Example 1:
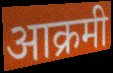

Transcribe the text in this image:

आक्रमी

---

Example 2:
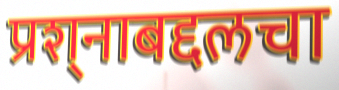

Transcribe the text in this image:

प्रश्नाबद्दलचा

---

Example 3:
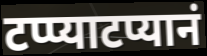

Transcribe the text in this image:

टप्प्याटप्यानं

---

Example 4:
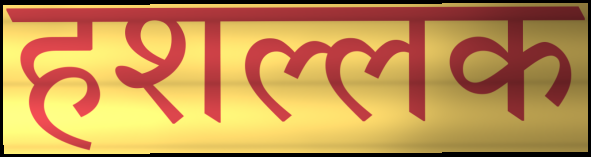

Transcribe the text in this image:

हशल्लक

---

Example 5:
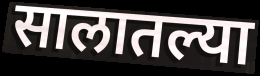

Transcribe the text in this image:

सालातल्या